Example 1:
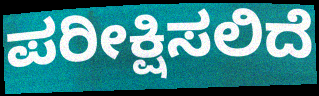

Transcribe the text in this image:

ಪರೀಕ್ಷಿಸಲಿದೆ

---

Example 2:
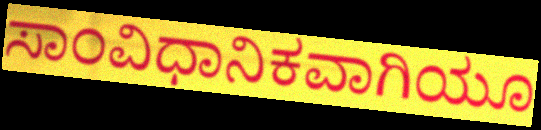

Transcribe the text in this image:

ಸಾಂವಿಧಾನಿಕವಾಗಿಯೂ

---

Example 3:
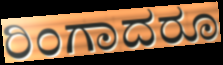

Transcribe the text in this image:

ರಿಂಗಾದರೂ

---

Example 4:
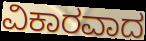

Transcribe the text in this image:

ವಿಕಾರವಾದ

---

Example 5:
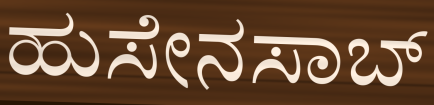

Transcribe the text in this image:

ಹುಸೇನಸಾಬ್